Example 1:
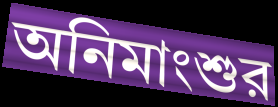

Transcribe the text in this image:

অনিমাংশুর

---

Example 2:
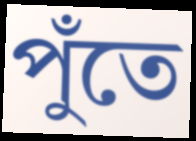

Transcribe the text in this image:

পুঁতে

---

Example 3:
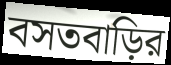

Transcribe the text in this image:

বসতবাড়ির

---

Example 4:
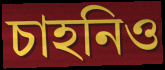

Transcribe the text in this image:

চাহনিও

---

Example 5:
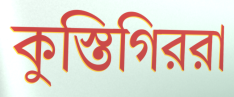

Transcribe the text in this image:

কুস্তিগিররা